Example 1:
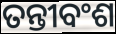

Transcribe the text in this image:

ତନ୍ତୀବଂଶ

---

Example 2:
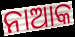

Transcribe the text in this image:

ନାଆକ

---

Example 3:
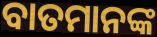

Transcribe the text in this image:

ବାତମାନଙ୍କ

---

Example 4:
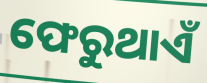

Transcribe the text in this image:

ଫେରୁଥାଏଁ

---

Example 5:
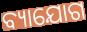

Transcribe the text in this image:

ବ୍ୟାଯୋଗ